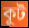
কূট